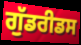
ਗੁੱਡਰੀਡਸ